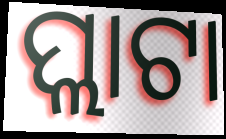
ପ୍ଲାଟା